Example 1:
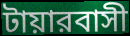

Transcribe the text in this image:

টায়ারবাসী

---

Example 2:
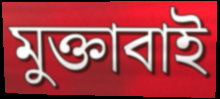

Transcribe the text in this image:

মুক্তাবাই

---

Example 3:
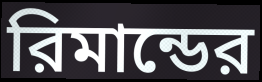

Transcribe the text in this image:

রিমান্ডের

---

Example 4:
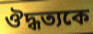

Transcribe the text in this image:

ঔদ্ধত্যকে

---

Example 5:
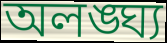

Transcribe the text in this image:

অলঙ্ঘ্য